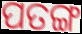
ପତଙ୍ଗ